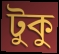
টুকু